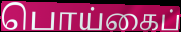
பொய்கைப்